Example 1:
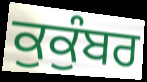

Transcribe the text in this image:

ਕੁਕੁੰਬਰ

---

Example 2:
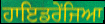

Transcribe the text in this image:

ਹਾਇਡਰੇਂਜਿਆ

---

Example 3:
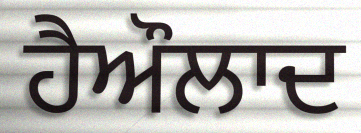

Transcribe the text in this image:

ਹੈਔਲਾਦ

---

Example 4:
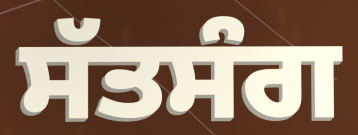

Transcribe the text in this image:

ਸੱਤਸੰਗ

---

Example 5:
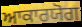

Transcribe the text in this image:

ਆਕਾਰਯੋਗ